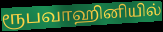
ரூபவாஹினியில்